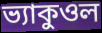
ভ্যাকুওল